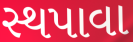
સ્થપાવા